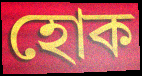
হোক